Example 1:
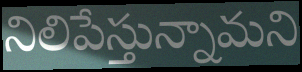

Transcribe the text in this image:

నిలిపేస్తున్నామని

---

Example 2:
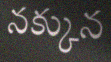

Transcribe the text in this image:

నక్కున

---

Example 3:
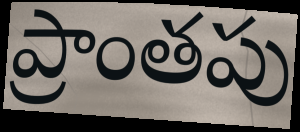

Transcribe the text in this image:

ప్రాంతపు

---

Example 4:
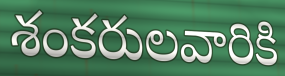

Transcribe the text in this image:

శంకరులవారికి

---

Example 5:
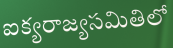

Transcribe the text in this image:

ఐక్యరాజ్యసమితిలో